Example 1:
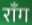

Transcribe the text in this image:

रॉंग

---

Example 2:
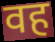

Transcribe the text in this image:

वह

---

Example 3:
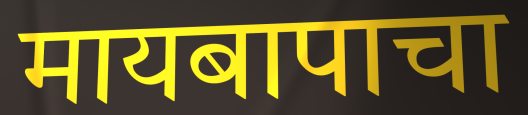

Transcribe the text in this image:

मायबापाचा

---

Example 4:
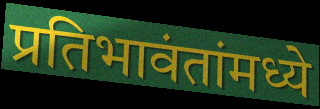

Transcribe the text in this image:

प्रतिभावंतांमध्ये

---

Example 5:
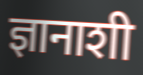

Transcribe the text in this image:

ज्ञानाशी